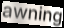
awning